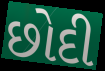
છોદી